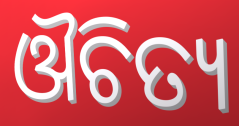
ଔଚିତ୍ଯ